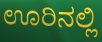
ಊರಿನಲ್ಲಿ